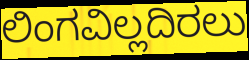
ಲಿಂಗವಿಲ್ಲದಿರಲು